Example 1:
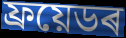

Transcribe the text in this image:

ফ্ৰয়েডৰ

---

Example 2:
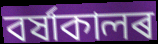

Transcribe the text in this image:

বৰ্ষাকালৰ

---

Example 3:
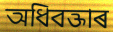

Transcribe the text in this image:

অধিবক্তাৰ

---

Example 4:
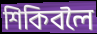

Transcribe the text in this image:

শিকিবলৈ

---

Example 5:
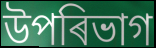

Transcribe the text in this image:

উপৰিভাগ